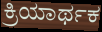
ಕ್ರಿಯಾರ್ಥಕ